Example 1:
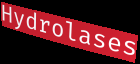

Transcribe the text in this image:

Hydrolases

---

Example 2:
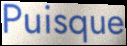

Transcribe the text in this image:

Puisque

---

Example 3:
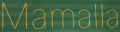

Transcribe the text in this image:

Mamalla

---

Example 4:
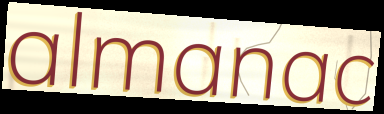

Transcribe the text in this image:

almanac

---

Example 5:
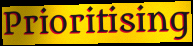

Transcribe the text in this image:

Prioritising